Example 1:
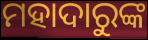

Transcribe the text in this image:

ମହାଦାରୁଙ୍କ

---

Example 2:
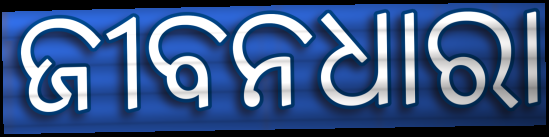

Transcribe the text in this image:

ଜୀବନଧାରା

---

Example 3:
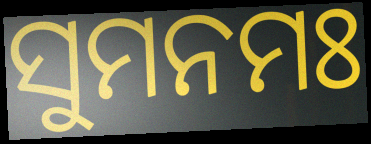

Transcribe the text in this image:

ସୁମନମଃ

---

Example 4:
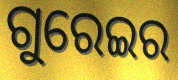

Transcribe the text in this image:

ଗୁରେଇର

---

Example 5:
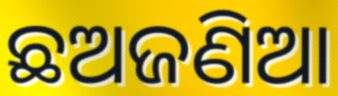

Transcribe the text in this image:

ଛଅଜଣିଆ